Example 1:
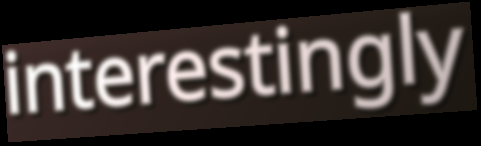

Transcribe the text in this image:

interestingly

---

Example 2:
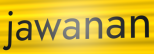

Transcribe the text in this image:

jawanan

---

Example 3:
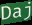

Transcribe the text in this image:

Daj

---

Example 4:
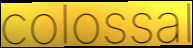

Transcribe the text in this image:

colossal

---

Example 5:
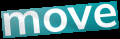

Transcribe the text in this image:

move